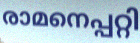
രാമനെപ്പറ്റി